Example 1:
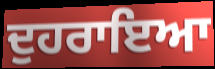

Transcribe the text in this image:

ਦੁਹਰਾਇਆ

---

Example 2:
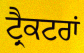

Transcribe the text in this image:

ਟ੍ਰੈਕਟਰਾਂ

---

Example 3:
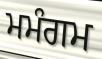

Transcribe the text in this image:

ਮਮੰਗਮ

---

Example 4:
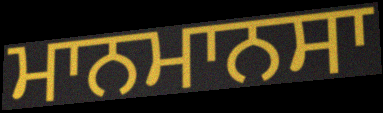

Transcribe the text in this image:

ਮਾਨਮਾਨਸਾ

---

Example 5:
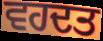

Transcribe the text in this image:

ਵਹਦਤ